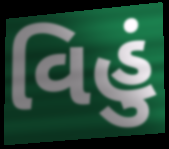
વિહું